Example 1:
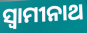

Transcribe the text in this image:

ସ୍ୱାମୀନାଥ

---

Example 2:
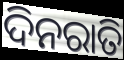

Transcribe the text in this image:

ଦିନରାତି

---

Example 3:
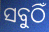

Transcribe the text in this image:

ସବୁଠିଁ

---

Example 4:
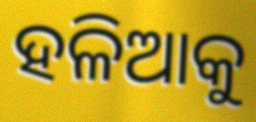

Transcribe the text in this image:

ହଳିଆକୁ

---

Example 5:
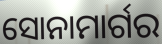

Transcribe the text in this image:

ସୋନାମାର୍ଗର